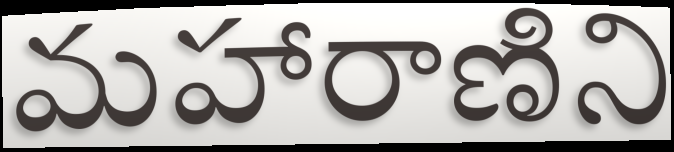
మహారాణిని